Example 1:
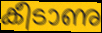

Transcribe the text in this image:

കീടാണു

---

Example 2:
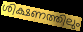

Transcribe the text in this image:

ശിക്ഷണത്തിലും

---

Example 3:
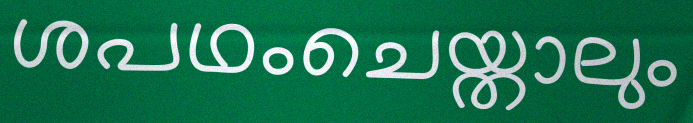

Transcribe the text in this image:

ശപഥംചെയ്താലും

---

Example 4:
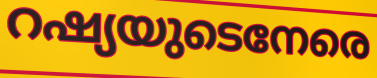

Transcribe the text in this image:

റഷ്യയുടെനേരെ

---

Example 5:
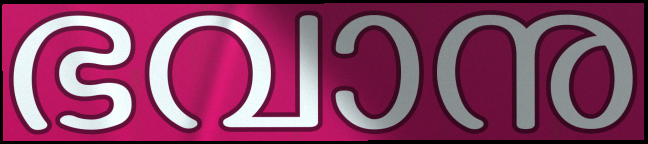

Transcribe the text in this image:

ഭവാനു